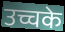
उच्चके